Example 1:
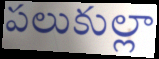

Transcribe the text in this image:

పలుకుల్లా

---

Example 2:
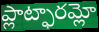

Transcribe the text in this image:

ప్లాట్ఫారమ్లో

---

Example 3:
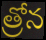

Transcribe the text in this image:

త్రోన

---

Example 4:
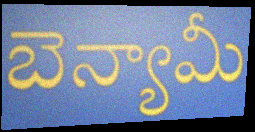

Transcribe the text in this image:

బెన్యామీ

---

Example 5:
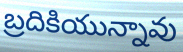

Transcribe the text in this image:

బ్రదికియున్నావు